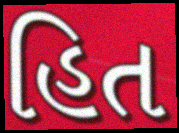
હિત